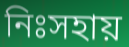
নিঃসহায়